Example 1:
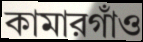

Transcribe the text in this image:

কামারগাঁও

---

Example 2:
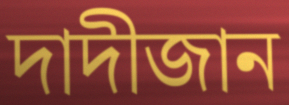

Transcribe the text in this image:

দাদীজান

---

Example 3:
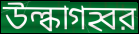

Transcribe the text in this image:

উল্কাগহ্বর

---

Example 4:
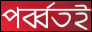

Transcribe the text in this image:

পর্ব্বতই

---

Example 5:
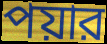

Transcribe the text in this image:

পয়ার